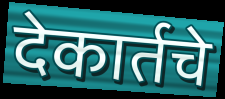
देकार्तचे